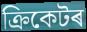
ক্ৰিকেটৰ